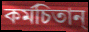
কর্মচিতান্